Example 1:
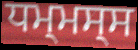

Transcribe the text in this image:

ਧਮ੍ਮਸ੍ਸ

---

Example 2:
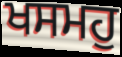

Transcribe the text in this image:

ਖਸਮਹੁ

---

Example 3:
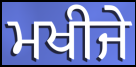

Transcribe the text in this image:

ਮਖੀਜੇ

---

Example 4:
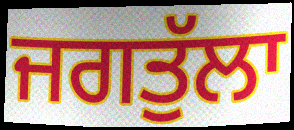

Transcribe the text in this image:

ਜਗਤੁੱਲਾ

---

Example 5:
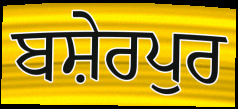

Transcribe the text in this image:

ਬਸ਼ੇਰਪੁਰ